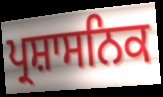
ਪ੍ਰਸ਼ਾਸਨਿਕ